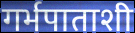
गर्भपाताशी